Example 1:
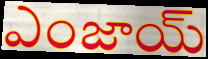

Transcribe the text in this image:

ఎంజాయ్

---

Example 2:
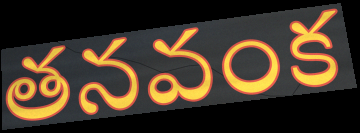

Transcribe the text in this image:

తనవంక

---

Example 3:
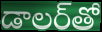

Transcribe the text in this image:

డాలర్‌తో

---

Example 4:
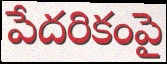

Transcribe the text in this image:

పేదరికంపై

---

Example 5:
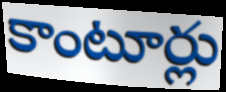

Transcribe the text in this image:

కాంటూర్లు